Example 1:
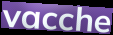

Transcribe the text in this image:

vacche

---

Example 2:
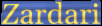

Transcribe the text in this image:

Zardari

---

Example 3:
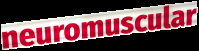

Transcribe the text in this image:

neuromuscular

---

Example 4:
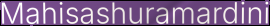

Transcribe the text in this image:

Mahisashuramardini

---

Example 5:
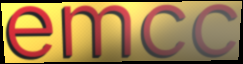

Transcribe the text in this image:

emcc